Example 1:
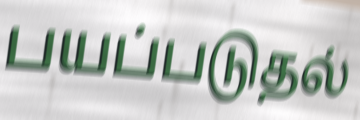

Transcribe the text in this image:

பயப்படுதல்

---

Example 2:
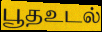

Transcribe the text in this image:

பூதஉடல்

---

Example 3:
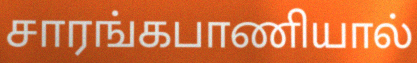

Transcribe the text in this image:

சாரங்கபாணியால்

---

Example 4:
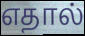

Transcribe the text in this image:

எதால்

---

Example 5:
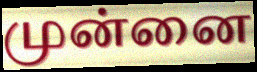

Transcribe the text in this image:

முன்னை